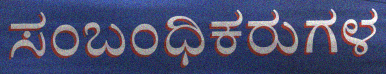
ಸಂಬಂಧಿಕರುಗಳ